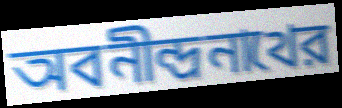
অবনীন্দ্রনাথের